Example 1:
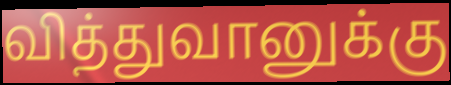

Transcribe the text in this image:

வித்துவானுக்கு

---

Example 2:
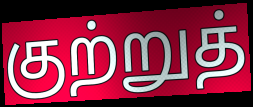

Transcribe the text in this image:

குற்றுத்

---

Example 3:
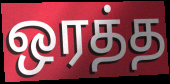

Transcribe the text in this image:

ஒரத்த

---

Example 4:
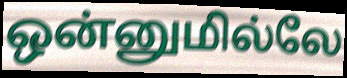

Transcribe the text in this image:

ஒன்னுமில்லே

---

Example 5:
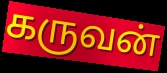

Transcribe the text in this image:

கருவன்